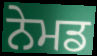
ਨੇਮਡ